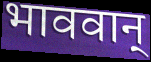
भाववान्